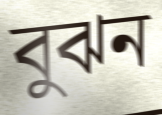
বুঝন